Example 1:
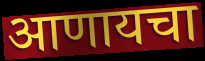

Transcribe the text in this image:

आणायचा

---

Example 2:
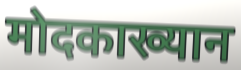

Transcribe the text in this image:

मोदकाख्यान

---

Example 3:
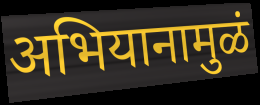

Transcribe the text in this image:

अभियानामुळं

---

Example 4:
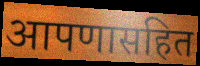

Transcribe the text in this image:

आपणासहित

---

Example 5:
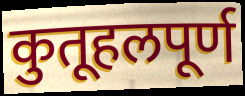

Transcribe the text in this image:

कुतूहलपूर्ण